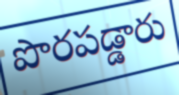
పొరపడ్డారు